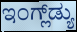
ಇಂಗ್ಲ್‌ಡ್ಯು